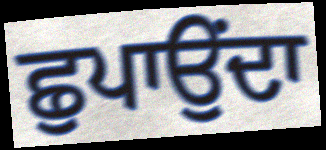
ਛੁਪਾਉਂਦਾ